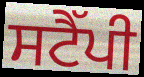
ਸਟੈੱਪੀ